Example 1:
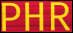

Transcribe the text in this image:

PHR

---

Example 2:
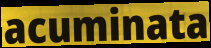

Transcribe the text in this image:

acuminata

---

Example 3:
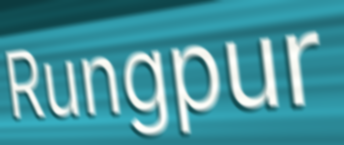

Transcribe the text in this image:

Rungpur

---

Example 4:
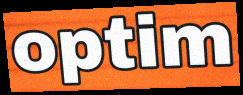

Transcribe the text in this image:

optim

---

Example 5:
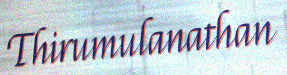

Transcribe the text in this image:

Thirumulanathan